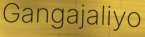
Gangajaliyo